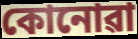
কোনোৱা